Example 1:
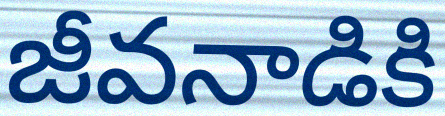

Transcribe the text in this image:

జీవనాడికి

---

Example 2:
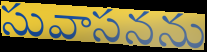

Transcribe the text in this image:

సువాసనను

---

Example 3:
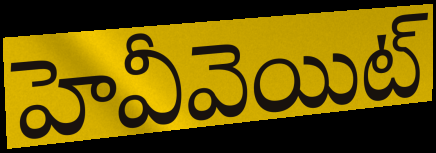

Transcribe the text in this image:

హెవీవెయిట్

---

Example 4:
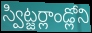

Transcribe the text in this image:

స్విట్జర్లాండ్లోని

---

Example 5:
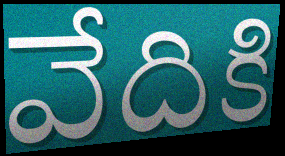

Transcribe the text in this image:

వేదికి